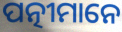
ପତ୍ନୀମାନେ